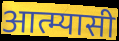
आत्म्यासी